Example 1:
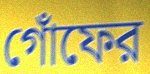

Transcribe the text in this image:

গোঁফের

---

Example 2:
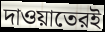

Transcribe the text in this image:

দাওয়াতেরই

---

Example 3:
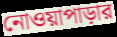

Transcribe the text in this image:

নোওয়াপাড়ার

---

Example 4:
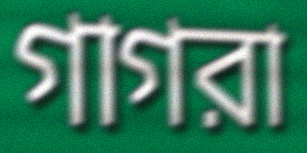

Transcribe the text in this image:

গাগরা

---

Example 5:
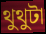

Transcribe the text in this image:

থুথুটা